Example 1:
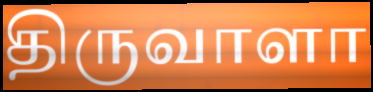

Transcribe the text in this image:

திருவாளா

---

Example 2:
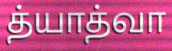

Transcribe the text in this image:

த்யாத்வா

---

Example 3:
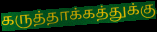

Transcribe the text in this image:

கருத்தாக்கத்துக்கு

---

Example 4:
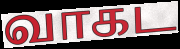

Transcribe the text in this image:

வாகட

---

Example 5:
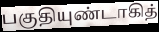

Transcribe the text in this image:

பகுதியுண்டாகித்